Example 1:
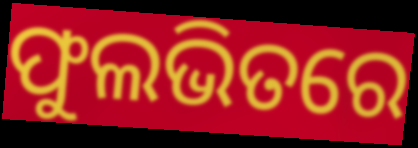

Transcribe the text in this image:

ଫୁଲଭିତରେ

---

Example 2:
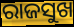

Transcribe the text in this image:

ରାଜସୁଖ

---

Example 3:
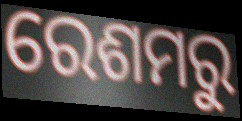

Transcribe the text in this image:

ରେଶମରୁ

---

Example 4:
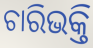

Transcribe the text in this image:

ଚାରିଭକ୍ତି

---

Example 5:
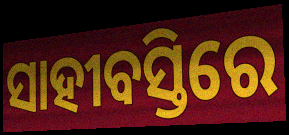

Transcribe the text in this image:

ସାହୀବସ୍ତିରେ